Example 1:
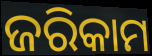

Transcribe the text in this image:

ଜରିକାମ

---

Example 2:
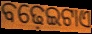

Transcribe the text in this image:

ବଢ଼େଇଟାଏ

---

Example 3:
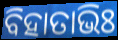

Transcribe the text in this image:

ବିହାତାଭିଃ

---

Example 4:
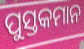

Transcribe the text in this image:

ପୁସ୍ତକମାନ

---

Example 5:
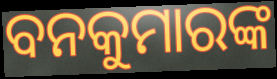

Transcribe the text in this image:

ବନକୁମାରଙ୍କ